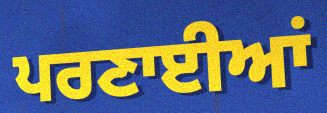
ਪਰਣਾਈਆਂ